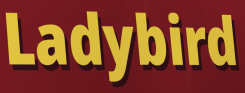
Ladybird